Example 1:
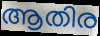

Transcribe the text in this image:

ആതിര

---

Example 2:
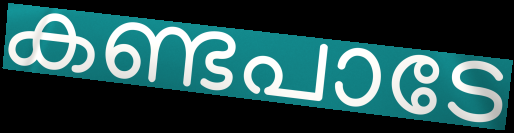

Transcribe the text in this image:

കണ്ടപാടേ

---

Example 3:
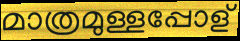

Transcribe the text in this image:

മാത്രമുള്ളപ്പോള്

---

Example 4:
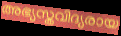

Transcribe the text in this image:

അഭ്യസ്തവിദ്യരായ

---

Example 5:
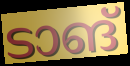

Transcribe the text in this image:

ടാങ്